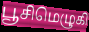
பூசிமெழுகி